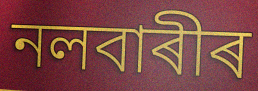
নলবাৰীৰ